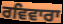
ਰਵਿਵਾਰਾ